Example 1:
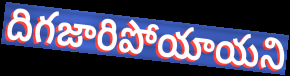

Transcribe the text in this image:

దిగజారిపోయాయని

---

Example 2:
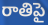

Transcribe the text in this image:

రాతిపై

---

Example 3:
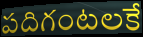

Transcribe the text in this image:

పదిగంటలకే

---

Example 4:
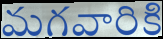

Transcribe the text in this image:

మగవారికి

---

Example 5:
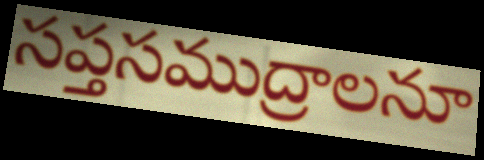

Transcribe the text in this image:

సప్తసముద్రాలనూ